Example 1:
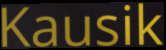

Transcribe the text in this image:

Kausik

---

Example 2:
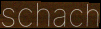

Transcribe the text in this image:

schach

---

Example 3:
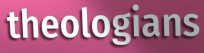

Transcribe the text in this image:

theologians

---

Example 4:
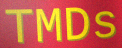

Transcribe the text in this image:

TMDs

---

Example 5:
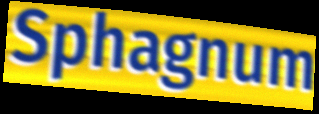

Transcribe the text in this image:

Sphagnum